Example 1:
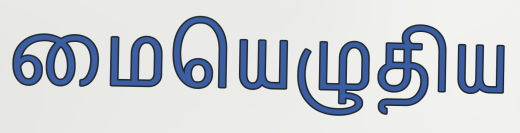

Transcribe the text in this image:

மையெழுதிய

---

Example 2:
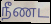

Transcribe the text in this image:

நீணட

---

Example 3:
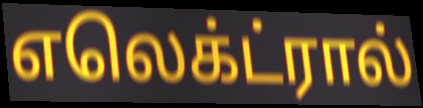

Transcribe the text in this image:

எலெக்ட்ரால்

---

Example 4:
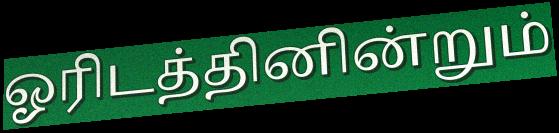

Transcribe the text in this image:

ஓரிடத்தினின்றும்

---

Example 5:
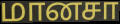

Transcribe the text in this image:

மானசா